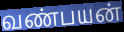
வண்பயன்